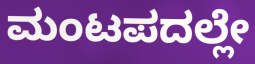
ಮಂಟಪದಲ್ಲೇ